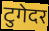
टुगेदर